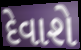
દેવાશે